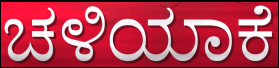
ಚಳಿಯಾಕೆ